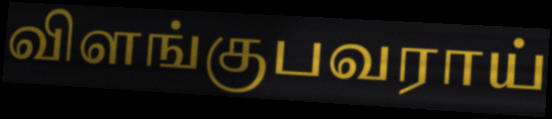
விளங்குபவராய்